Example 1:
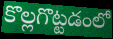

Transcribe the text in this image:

కొల్లగొట్టడంలో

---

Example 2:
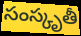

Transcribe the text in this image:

సంస్కృతీ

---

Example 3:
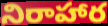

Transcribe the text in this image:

నిరాహార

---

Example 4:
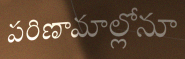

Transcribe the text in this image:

పరిణామాల్లోనూ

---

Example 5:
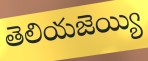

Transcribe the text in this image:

తెలియజెయ్యి